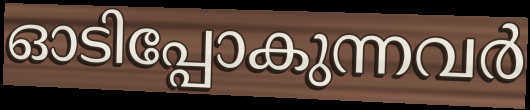
ഓടിപ്പോകുന്നവർ